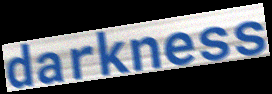
darkness